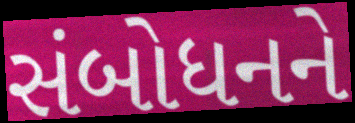
સંબોધનને